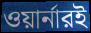
ওয়ার্নারই